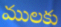
ములకు